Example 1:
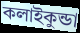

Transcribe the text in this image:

কলাইকুন্ডা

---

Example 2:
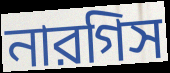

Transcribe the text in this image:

নারগিস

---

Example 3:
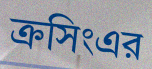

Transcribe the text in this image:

ক্রসিংএর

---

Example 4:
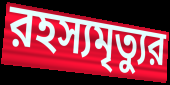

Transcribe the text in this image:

রহস্যমৃত্যুর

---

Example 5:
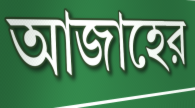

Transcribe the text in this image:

আজাহের